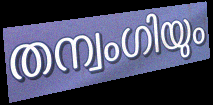
തന്വംഗിയും